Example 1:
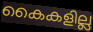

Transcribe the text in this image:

കൈകളില്ല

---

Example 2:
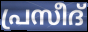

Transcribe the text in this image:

പ്രസീദ്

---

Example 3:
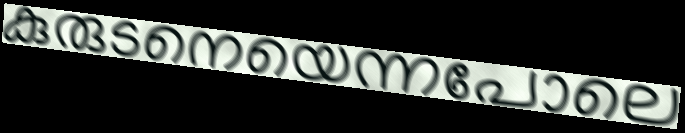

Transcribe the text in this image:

കുരുടനെയെന്നപോലെ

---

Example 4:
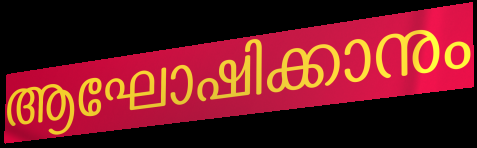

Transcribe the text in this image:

ആഘോഷിക്കാനും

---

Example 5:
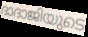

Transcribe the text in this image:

ദാദാജിയുടെ